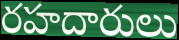
రహదారులు